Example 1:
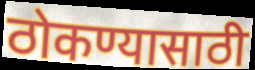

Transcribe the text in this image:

ठोकण्यासाठी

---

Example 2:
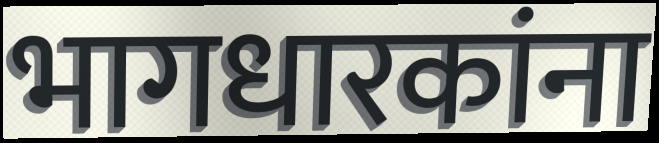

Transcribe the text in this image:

भागधारकांना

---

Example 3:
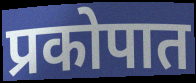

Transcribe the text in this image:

प्रकोपात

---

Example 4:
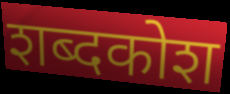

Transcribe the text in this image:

शब्दकोश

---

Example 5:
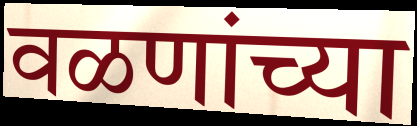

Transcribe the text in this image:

वळणांच्या